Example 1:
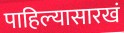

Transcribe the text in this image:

पाहिल्यासारखं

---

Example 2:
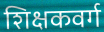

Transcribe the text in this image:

शिक्षकवर्ग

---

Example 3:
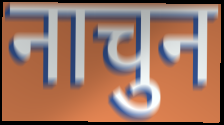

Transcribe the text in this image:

नाचुन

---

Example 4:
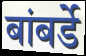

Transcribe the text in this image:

बांबर्डे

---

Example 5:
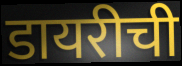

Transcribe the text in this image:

डायरीची